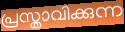
പ്രസ്താവിക്കുന്ന